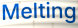
Melting